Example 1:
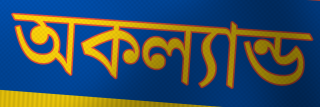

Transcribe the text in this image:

অকল্যান্ড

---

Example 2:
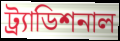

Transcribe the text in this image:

ট্র্যাডিশনাল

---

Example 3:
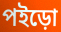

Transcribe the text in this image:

পইড়ো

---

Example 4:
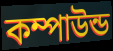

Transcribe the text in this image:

কম্পাউন্ড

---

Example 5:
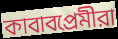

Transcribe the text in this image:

কাবাবপ্রেমীরা